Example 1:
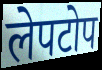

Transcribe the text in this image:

लेपटोप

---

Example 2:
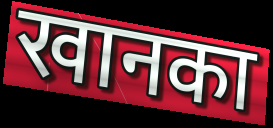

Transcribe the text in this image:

खानका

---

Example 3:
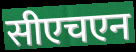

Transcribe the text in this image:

सीएचएन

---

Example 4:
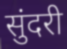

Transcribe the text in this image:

सुंदरी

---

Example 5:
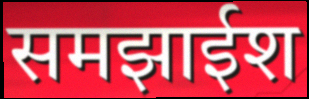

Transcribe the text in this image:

समझाईश